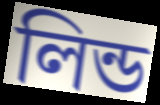
লিন্ড